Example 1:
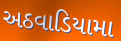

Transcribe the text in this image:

અઠવાડિયામા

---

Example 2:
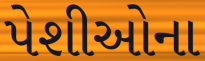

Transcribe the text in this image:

પેશીઓના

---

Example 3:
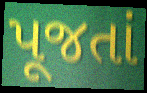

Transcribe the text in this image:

પૂજતાં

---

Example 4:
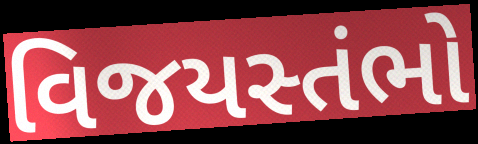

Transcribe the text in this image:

વિજયસ્તંભો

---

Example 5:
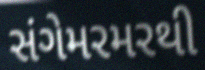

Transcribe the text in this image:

સંગેમરમરથી